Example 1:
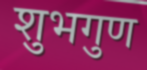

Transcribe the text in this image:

शुभगुण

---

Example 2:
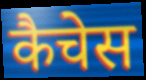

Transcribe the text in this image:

कैचेस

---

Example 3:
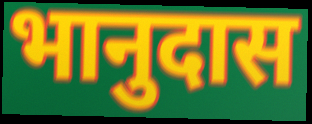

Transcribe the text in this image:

भानुदास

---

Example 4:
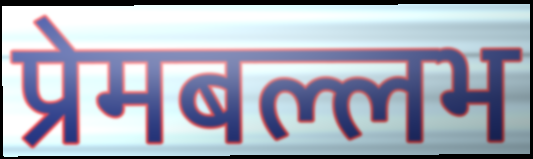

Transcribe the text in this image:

प्रेमबल्लभ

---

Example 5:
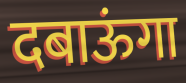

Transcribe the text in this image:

दबाऊंगा